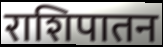
राशिपातन